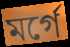
মর্গে